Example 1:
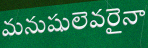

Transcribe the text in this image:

మనుషులెవరైనా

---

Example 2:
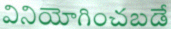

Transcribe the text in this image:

వినియోగించబడే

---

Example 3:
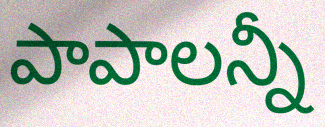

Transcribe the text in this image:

పాపాలన్నీ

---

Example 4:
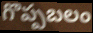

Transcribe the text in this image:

గొప్పబలం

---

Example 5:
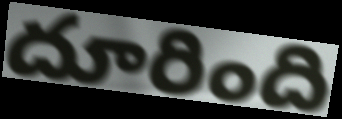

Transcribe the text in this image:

దూరింది